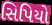
સિપિયો